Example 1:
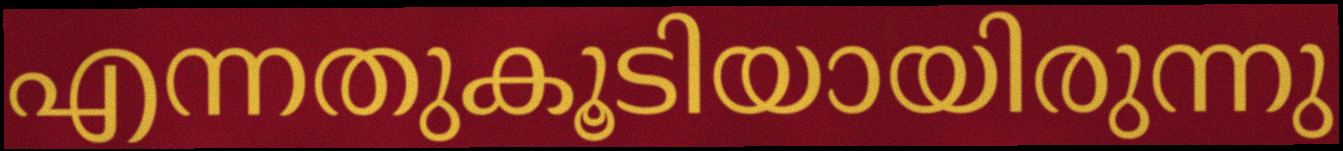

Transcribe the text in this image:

എന്നതുകൂടിയായിരുന്നു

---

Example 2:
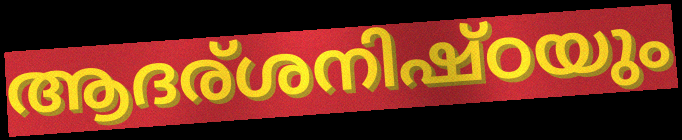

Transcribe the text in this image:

ആദര്ശനിഷ്ഠയും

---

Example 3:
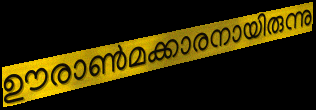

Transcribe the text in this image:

ഊരാൺമക്കാരനായിരുന്നു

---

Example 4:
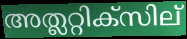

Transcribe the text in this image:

അത്ലറ്റിക്സില്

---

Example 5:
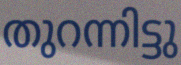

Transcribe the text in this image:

തുറന്നിട്ടു